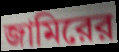
জামিরের